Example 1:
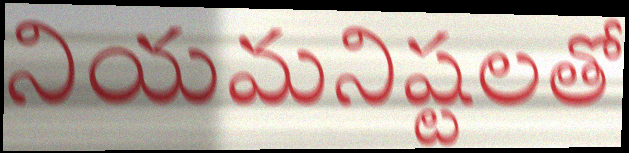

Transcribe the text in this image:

నియమనిష్టలతో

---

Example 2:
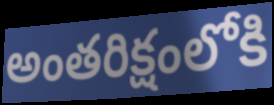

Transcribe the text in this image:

అంతరిక్షంలోకి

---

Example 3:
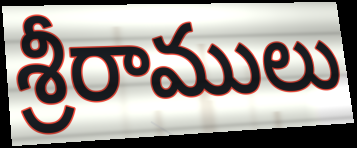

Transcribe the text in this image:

శ్రీరాములు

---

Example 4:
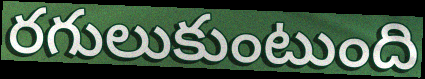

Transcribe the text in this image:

రగులుకుంటుంది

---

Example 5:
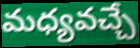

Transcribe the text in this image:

మధ్యవచ్చే